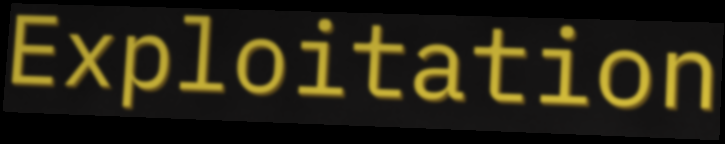
Exploitation